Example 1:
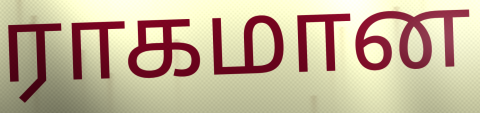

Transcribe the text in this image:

ராகமான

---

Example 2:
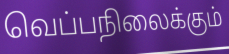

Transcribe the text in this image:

வெப்பநிலைக்கும்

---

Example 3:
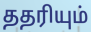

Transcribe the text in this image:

ததரியும்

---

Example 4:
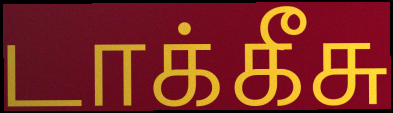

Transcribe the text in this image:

டாக்கீசு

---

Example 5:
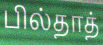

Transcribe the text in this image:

பில்தாத்